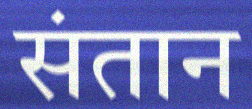
संतान